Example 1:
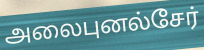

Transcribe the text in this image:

அலைபுனல்சேர்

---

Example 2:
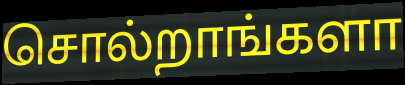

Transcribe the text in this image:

சொல்றாங்களா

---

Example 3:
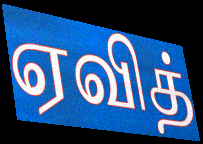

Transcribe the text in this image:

ஏவித்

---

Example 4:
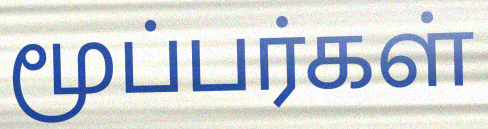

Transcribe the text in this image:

மூப்பர்கள்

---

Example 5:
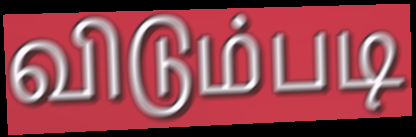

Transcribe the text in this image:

விடும்படி